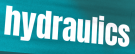
hydraulics